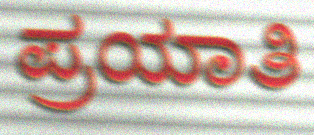
ಪ್ರಯಾತಿ